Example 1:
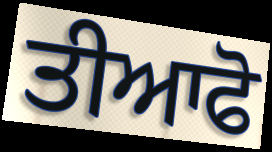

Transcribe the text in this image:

ਤੀਆਫੋ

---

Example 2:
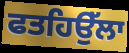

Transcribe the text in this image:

ਫਤਹਿਉੱਲਾ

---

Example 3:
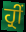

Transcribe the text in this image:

ਹ੍ਰੀਂ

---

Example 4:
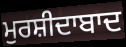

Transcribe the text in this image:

ਮੁਰਸ਼ੀਦਾਬਾਦ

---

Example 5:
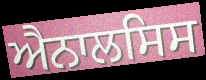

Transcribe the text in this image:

ਐਨਾਲਸਿਸ